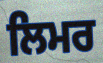
ਲਿਮਰ